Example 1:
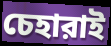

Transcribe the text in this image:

চেহারাই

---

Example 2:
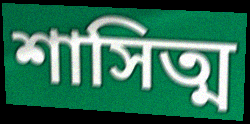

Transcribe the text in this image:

শাসিত্ম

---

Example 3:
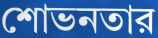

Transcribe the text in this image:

শোভনতার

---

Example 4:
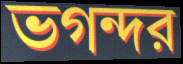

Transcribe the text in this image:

ভগন্দর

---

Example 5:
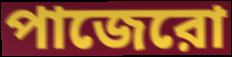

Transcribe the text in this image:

পাজেরো